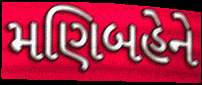
મણિબહેને